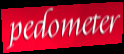
pedometer